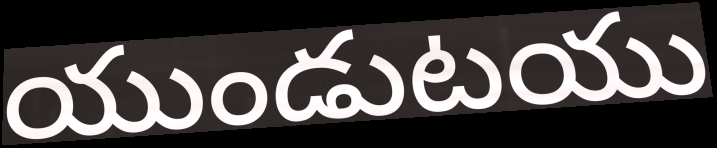
యుండుటయు